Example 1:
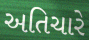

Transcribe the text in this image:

અતિચારે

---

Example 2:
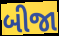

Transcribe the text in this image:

બીજા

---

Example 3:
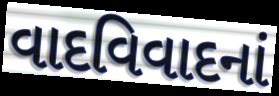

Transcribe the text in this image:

વાદવિવાદનાં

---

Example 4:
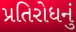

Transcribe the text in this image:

પ્રતિરોધનું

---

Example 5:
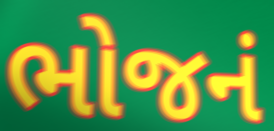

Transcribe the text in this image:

ભોજનં